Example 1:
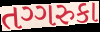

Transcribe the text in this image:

તગ્ગરુકા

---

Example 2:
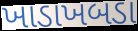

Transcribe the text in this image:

ખાડાખબડા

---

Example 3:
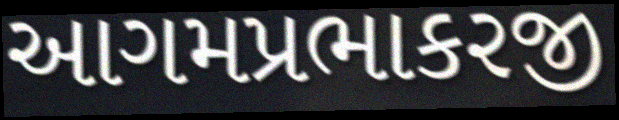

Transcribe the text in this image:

આગમપ્રભાકરજી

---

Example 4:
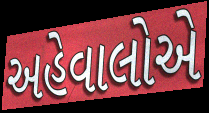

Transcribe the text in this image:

અહેવાલોએ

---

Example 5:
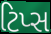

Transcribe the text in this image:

ટિપ્સ